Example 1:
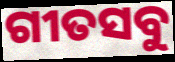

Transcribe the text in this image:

ଗୀତସବୁ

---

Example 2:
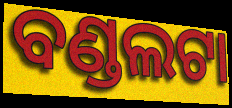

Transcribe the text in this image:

ବଣ୍ଡଲଟା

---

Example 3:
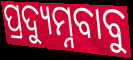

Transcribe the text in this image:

ପ୍ରଦ୍ୟୁମ୍ନବାବୁ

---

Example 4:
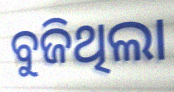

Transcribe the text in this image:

ବୁଜିଥିଲା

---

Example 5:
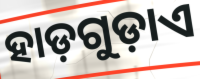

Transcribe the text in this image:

ହାଡ଼ଗୁଡ଼ାଏ